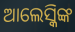
ଆଲେସ୍କିଙ୍କ